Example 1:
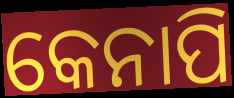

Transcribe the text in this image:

କେନାପି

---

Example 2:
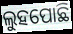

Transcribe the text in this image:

ଲୁହପୋଛି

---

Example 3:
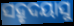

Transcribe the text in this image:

ସହୃଦୟାସୁ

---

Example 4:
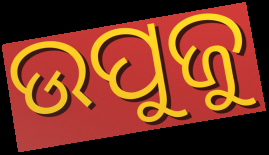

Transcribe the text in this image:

ଉପୁଜୁ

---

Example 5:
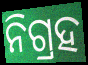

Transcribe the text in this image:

ନିଗ୍ରହ